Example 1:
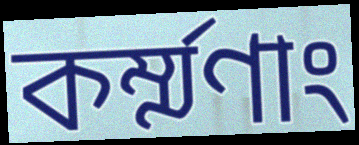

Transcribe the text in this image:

কর্ম্মণাং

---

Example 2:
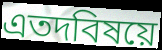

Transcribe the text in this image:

এতদবিষয়ে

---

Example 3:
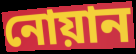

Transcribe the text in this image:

নোয়ান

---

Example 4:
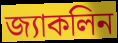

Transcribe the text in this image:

জ্যাকলিন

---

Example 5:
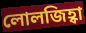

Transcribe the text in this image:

লোলজিহ্বা